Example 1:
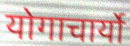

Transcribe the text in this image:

योगाचार्यो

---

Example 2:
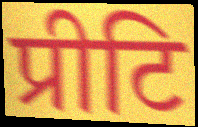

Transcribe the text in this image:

प्रीटि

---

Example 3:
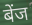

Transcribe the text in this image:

बेंज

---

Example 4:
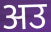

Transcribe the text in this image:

अउ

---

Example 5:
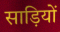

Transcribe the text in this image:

साड़ियों